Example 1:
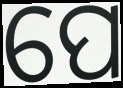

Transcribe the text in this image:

ପେ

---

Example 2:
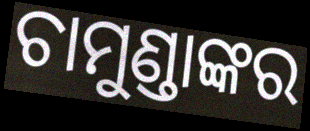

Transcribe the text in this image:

ଚାମୁଣ୍ଡାଙ୍କର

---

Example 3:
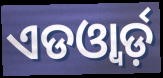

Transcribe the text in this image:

ଏଡଓ୍ବାର୍ଡ଼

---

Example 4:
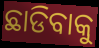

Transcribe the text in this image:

ଛାଡିବାକୁ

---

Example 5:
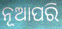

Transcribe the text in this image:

ନୂଆପରି